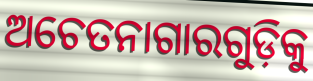
ଅଚେତନାଗାରଗୁଡ଼ିକୁ